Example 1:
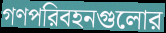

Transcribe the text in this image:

গণপরিবহনগুলোর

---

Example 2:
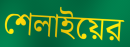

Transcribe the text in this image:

শেলাইয়ের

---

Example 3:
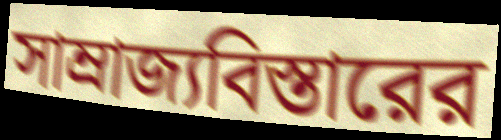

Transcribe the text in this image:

সাম্রাজ্যবিস্তারের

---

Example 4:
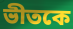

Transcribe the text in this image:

ভীতকে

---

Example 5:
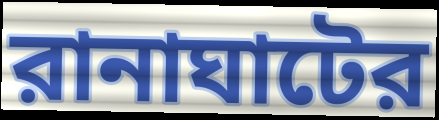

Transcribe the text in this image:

রানাঘাটের